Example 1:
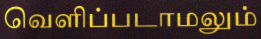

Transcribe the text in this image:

வெளிப்படாமலும்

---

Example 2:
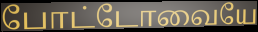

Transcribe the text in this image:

போட்டோவையே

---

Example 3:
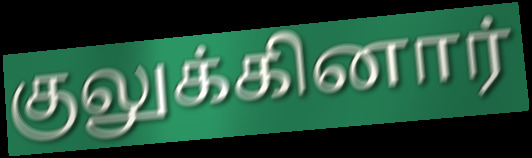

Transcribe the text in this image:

குலுக்கினார்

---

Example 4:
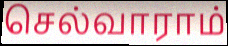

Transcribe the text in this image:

செல்வாராம்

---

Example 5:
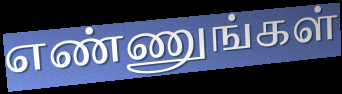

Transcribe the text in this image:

எண்ணுங்கள்